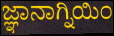
ಜ್ಞಾನಾಗ್ನಿಯಿಂ